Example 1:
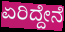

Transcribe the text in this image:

ಏರಿದ್ದೇನೆ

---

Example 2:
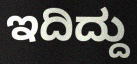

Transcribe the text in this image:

ಇದಿದ್ದು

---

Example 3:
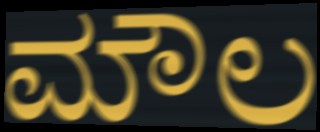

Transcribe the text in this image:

ಮೌಲ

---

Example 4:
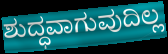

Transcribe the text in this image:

ಶುದ್ಧವಾಗುವುದಿಲ್ಲ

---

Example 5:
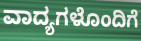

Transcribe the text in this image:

ವಾದ್ಯಗಳೊಂದಿಗೆ